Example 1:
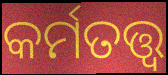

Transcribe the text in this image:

କର୍ମତତ୍ତ୍ୱ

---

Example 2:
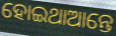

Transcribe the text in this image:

ହୋଇଥାଆନ୍ତେ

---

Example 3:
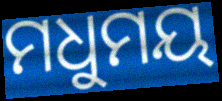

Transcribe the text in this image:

ମଧୁମୟ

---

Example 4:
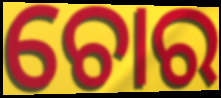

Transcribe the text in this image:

ଚୋର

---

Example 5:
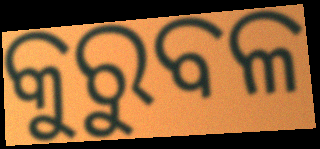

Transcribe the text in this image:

କୁରୁବଳ